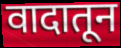
वादातून